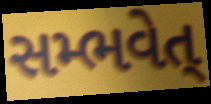
સમ્ભવેત્